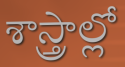
శాస్త్రాల్లో